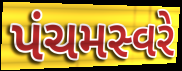
પંચમસ્વરે